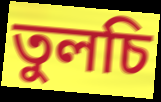
তুলচি